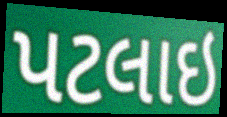
પટલાઇ